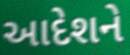
આદેશને